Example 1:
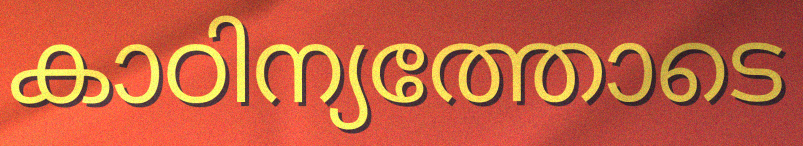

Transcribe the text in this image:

കാഠിന്യത്തോടെ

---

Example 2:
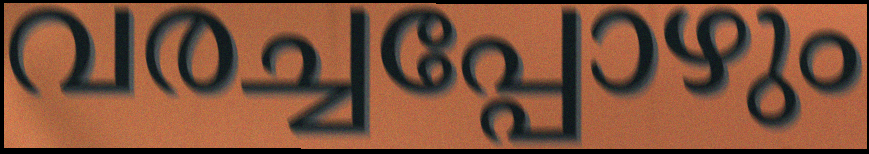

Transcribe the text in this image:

വരച്ചപ്പോഴും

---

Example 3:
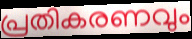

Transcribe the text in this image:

പ്രതികരണവും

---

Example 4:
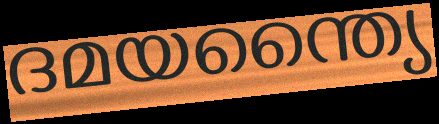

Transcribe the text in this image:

ദമയന്ത്യൈ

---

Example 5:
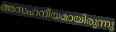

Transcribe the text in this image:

അസഹനീയമായിരുന്നു